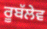
ਰੂਬੱਲੇਵ